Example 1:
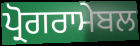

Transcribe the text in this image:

ਪ੍ਰੋਗਰਾਮੇਬਲ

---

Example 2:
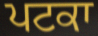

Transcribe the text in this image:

ਪਟਕਾ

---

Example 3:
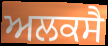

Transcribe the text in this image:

ਅਲਕਸੈ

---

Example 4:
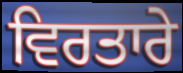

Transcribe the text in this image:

ਵਿਰਤਾਰੇ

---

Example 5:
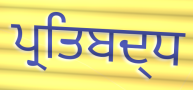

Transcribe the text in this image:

ਪ੍ਰਤਿਬਦ੍ਧ